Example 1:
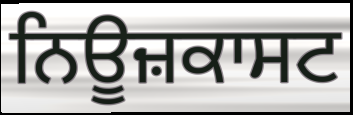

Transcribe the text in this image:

ਨਿਊਜ਼ਕਾਸਟ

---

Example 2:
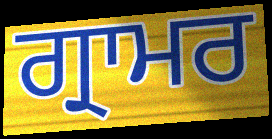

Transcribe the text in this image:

ਗ੍ਰਾਮਰ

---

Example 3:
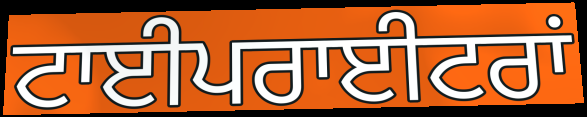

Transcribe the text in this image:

ਟਾਈਪਰਾਈਟਰਾਂ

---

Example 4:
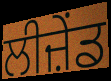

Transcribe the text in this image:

ਲੀਜ਼ੇਂਡ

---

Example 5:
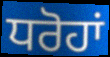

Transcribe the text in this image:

ਧਰੋਹਾਂ